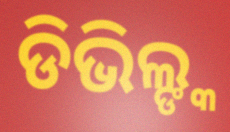
ଡିଭିଲ୍ଙ୍କ